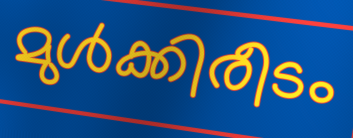
മുൾക്കിരീടം